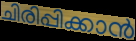
ചിരിപ്പിക്കാൻ